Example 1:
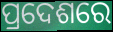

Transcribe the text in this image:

ପ୍ରଦେଶରେ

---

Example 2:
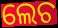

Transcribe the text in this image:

ଲେଚ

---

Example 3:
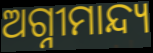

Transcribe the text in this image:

ଅଗ୍ନୀମାନ୍ଦ୍ୟ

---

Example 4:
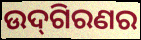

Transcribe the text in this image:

ଉଦ୍‌ଗିରଣର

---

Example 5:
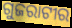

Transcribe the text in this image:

ଗୁଜରାଟୀର